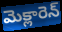
మెక్లారెన్